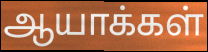
ஆயாக்கள்